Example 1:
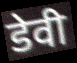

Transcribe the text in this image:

डेवी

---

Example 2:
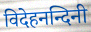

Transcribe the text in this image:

विदेहनन्दिनी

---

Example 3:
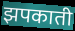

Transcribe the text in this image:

झपकाती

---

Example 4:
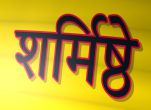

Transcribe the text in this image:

शर्मिष्ठे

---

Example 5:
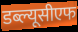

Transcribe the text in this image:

डब्ल्यूसीएफ